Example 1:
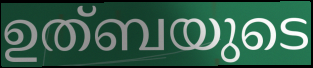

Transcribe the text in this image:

ഉത്ബയുടെ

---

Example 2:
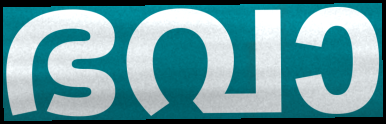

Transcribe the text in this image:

ഭവാ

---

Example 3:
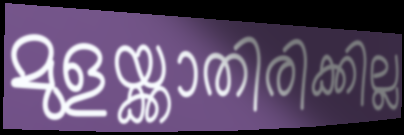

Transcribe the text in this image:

മുളയ്ക്കാതിരിക്കില്ല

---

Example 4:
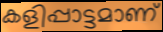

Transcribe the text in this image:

കളിപ്പാട്ടമാണ്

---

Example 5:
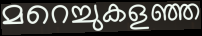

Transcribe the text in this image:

മറെച്ചുകളഞ്ഞ